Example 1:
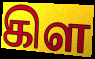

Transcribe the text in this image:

கிள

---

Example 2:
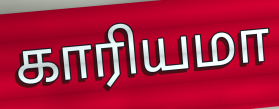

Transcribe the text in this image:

காரியமா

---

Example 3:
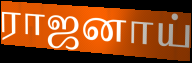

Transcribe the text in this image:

ராஜனாய்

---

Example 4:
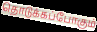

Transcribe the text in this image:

தொடுக்கப்போகும்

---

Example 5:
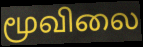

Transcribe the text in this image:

மூவிலை